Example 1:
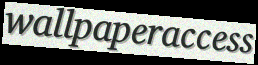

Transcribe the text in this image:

wallpaperaccess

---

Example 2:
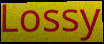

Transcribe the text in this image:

Lossy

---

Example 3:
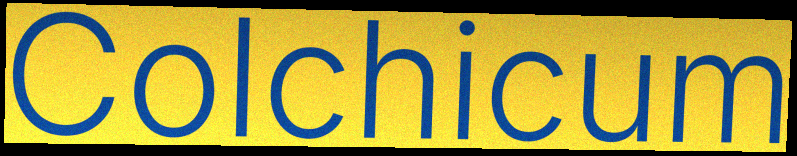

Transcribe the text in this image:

Colchicum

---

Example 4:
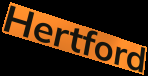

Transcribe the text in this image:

Hertford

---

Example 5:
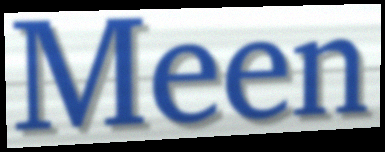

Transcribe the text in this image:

Meen